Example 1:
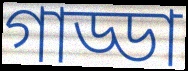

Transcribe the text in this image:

গাড্ডা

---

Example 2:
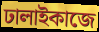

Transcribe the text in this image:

ঢালাইকাজে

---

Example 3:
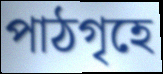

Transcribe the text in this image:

পাঠগৃহে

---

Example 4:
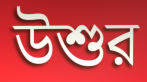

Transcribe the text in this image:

উশুর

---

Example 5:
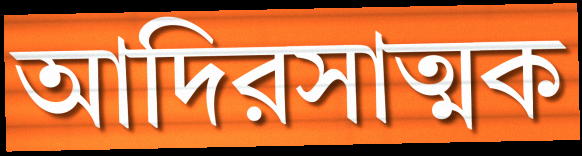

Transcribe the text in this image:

আদিরসাত্মক